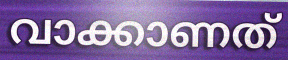
വാക്കാണത്